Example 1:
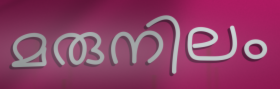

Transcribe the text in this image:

മരുനിലം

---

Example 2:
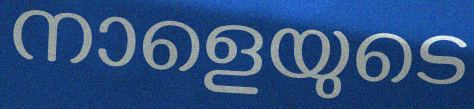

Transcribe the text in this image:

നാളെയുടെ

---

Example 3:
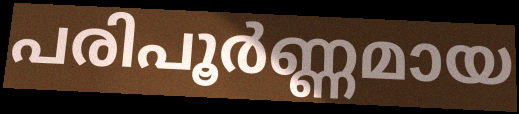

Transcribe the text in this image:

പരിപൂർണ്ണമായ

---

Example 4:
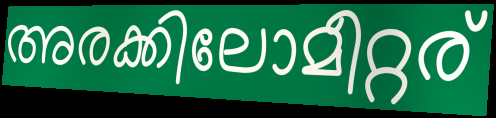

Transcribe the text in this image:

അരക്കിലോമീറ്റര്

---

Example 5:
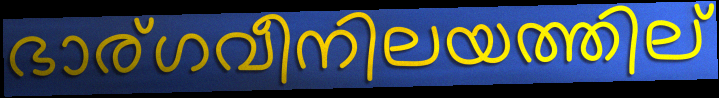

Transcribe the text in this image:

ഭാര്ഗവീനിലയത്തില്